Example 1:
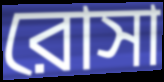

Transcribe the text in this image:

রোসা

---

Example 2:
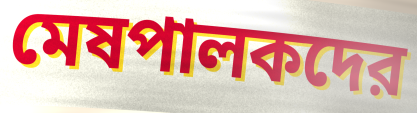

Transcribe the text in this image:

মেষপালকদের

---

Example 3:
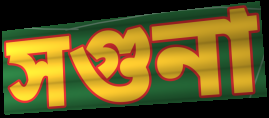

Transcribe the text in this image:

সগুনা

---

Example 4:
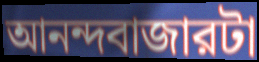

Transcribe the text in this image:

আনন্দবাজারটা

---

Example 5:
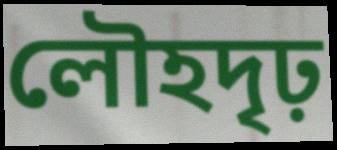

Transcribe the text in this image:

লৌহদৃঢ়